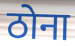
ठोना